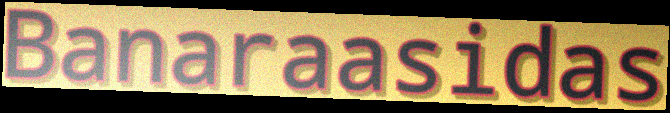
Banaraasidas